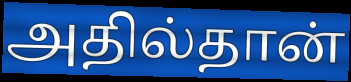
அதில்தான்